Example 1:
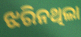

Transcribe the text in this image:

ଝରିନଥିଲା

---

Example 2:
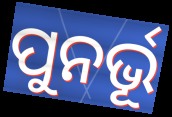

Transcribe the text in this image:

ପୁନର୍ଭୂ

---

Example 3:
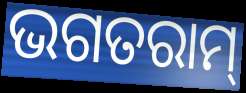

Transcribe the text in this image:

ଭଗତରାମ୍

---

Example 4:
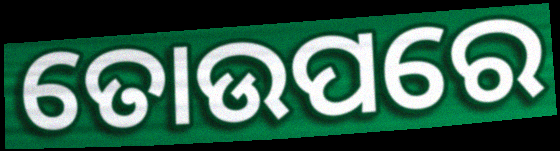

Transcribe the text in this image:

ତୋଉପରେ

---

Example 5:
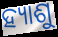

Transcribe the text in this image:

ହ୍ୟାଶୁ